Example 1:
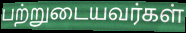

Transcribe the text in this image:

பற்றுடையவர்கள்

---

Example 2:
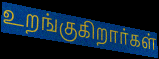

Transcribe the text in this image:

உறங்குகிறார்கள்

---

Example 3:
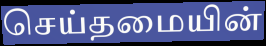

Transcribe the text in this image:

செய்தமையின்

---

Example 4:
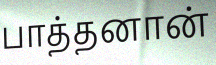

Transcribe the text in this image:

பாத்தனான்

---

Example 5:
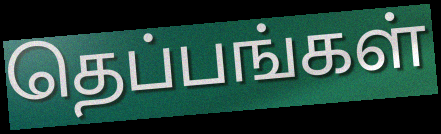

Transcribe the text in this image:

தெப்பங்கள்